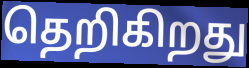
தெறிகிறது